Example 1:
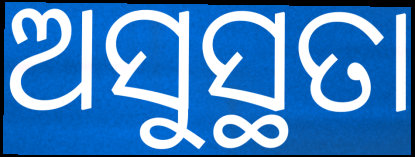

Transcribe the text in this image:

ଅସୁସ୍ଥତା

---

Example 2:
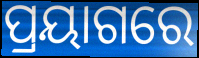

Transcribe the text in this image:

ପ୍ରୟାଗରେ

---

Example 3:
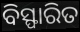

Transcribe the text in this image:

ବିସ୍ଫାରିତ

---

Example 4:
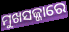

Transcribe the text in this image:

ମୁଖସଜ୍ଜାରେ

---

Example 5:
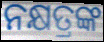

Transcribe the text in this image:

ନକ୍ଷତ୍ରଙ୍କ